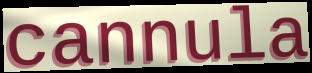
cannula